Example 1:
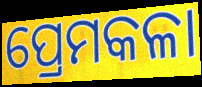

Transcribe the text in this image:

ପ୍ରେମକଳା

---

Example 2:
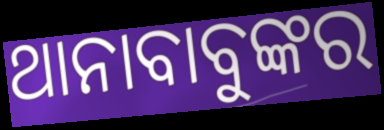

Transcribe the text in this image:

ଥାନାବାବୁଙ୍କର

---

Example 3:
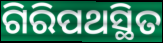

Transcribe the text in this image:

ଗିରିପଥସ୍ଥିତ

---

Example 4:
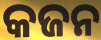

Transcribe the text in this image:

କଜନ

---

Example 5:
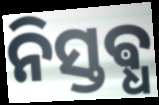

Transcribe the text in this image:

ନିସ୍ତଵ୍ଧ